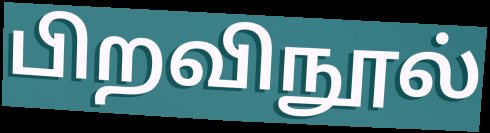
பிறவிநூல்